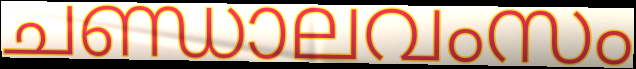
ചണ്ഡാലവംസം